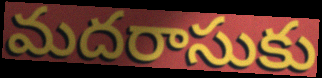
మదరాసుకు